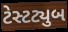
ટેસ્ટટ્યુબ